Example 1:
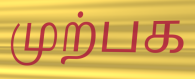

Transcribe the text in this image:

முற்பக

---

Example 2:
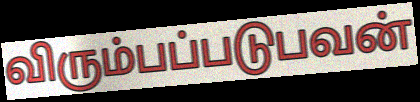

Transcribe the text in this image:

விரும்பப்படுபவன்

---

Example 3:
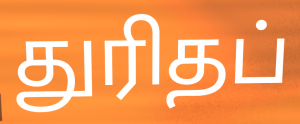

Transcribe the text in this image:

துரிதப்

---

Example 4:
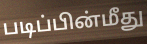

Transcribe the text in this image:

படிப்பின்மீது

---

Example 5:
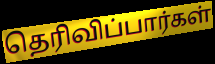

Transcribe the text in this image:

தெரிவிப்பார்கள்